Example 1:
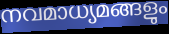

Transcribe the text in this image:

നവമാധ്യമങ്ങളും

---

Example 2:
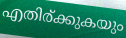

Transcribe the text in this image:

എതിര്ക്കുകയും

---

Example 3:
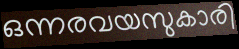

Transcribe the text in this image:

ഒന്നരവയസുകാരി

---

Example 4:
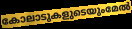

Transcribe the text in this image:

കോലാടുകളുടെയുംമേൽ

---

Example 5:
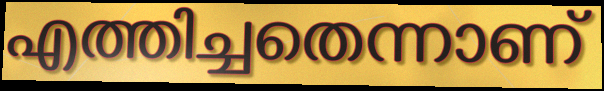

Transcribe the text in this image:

എത്തിച്ചതെന്നാണ്